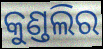
କୁଣ୍ଡଲିର